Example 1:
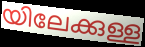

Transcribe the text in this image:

യിലേക്കുള്ള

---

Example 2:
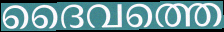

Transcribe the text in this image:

ദൈവത്തെ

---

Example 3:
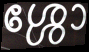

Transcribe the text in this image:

ശ്ശോ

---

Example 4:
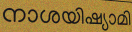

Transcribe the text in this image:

നാശയിഷ്യാമി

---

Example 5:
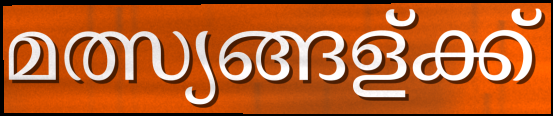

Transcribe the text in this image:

മത്സ്യങ്ങള്ക്ക്